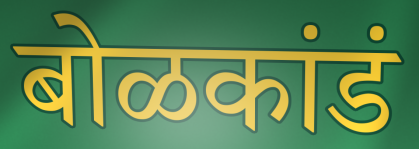
बोळकांडं